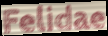
Felidae